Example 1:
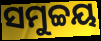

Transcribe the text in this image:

ସମୁଚ୍ଚୟ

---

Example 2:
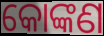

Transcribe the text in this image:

କୋଙ୍କଣ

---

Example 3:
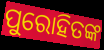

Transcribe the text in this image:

ପୁରୋହିତଙ୍କ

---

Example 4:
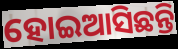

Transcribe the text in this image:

ହୋଇଆସିଛନ୍ତି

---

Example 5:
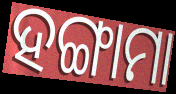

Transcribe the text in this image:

ହଙ୍ଗାମା